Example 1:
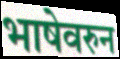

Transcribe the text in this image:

भाषेवरुन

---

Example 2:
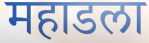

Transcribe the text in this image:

महाडला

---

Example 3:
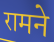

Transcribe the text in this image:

रामने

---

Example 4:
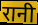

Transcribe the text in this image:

रानी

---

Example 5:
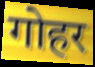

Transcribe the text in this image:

गोहर